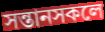
সন্তানসকলে